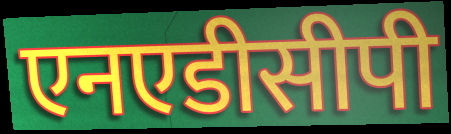
एनएडीसीपी